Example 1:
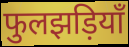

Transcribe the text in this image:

फुलझड़ियाँ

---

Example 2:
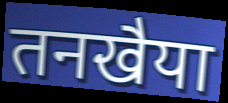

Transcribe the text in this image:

तनखैया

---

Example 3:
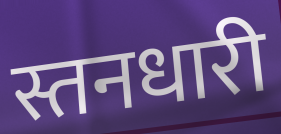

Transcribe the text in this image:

स्तनधारी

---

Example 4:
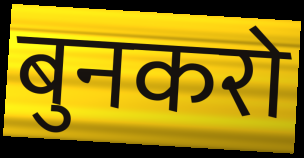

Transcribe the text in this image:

बुनकरो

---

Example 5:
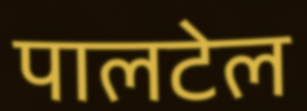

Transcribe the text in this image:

पालटेल